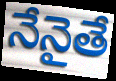
నేనైతే